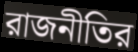
রাজনীতির